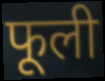
फूली